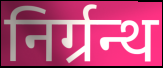
निर्ग्रन्थ